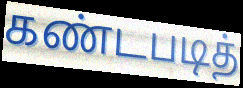
கண்டபடித்